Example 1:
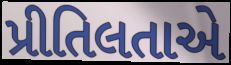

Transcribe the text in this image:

પ્રીતિલતાએ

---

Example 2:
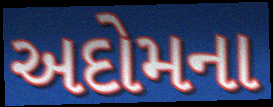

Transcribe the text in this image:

અદોમના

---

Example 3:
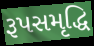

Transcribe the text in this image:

રૂપસમૃદ્ધિ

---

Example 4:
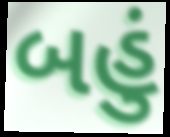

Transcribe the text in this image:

બહું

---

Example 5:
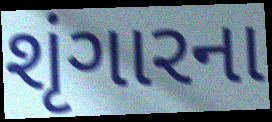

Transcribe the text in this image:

શૃંગારના